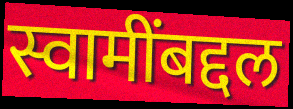
स्वामींबद्दल